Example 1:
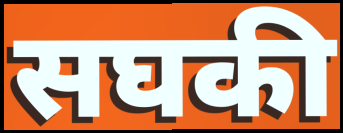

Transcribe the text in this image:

सघकी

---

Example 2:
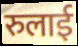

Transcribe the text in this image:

रुलाई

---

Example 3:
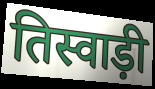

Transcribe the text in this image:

तिस्वाड़ी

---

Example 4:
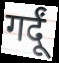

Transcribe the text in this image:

गर्दूं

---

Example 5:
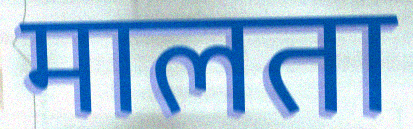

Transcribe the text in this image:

मालता